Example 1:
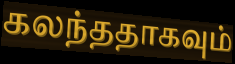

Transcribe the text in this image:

கலந்ததாகவும்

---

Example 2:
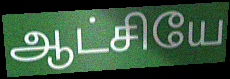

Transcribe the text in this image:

ஆட்சியே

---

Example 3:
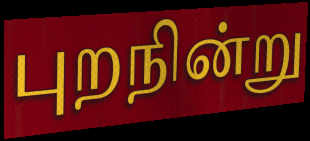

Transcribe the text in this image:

புறநின்று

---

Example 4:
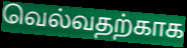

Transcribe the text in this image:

வெல்வதற்காக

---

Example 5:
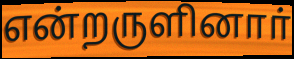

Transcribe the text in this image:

என்றருளினார்